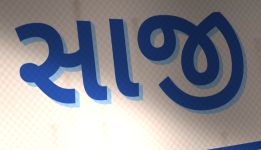
સાજી